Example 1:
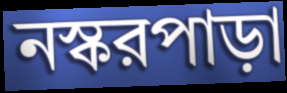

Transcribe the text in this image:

নস্করপাড়া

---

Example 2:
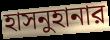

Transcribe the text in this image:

হাসনুহানার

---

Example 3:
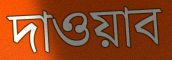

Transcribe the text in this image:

দাওয়াব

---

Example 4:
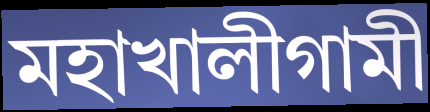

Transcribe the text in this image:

মহাখালীগামী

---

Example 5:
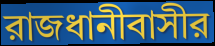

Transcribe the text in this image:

রাজধানীবাসীর